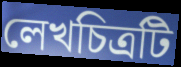
লেখচিত্রটি